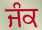
ਜੰਕ